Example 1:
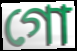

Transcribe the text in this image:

গো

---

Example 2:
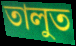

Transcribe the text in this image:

তালুত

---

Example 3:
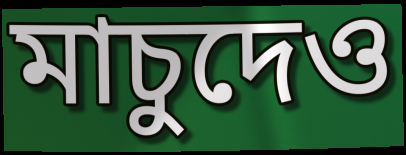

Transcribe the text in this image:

মাচুদেও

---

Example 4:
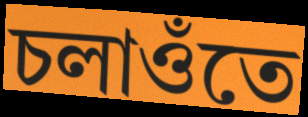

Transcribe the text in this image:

চলাওঁতে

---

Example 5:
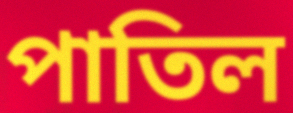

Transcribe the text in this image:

পাতিল